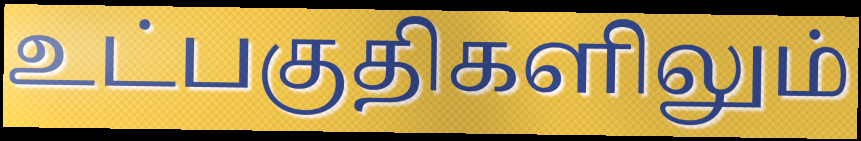
உட்பகுதிகளிலும்